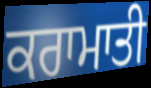
ਕਰਾਮਾਤੀ